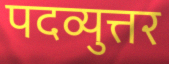
पदव्युत्तर